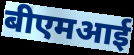
बीएमआई